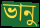
ভানু